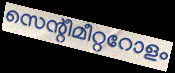
സെന്റീമീറ്ററോളം